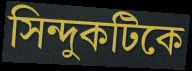
সিন্দুকটিকে